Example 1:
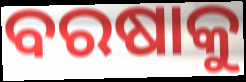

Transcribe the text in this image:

ବରଷାକୁ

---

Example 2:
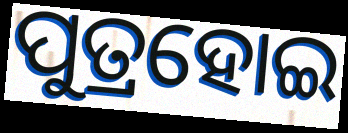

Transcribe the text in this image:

ପୁତ୍ରହୋଇ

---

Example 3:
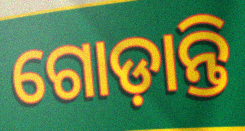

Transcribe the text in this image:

ଗୋଡ଼ାନ୍ତି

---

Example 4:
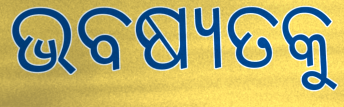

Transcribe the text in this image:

ଭବଷ୍ୟତକୁ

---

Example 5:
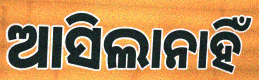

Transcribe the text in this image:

ଆସିଲାନାହିଁ